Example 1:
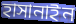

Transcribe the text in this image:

হাসানাইন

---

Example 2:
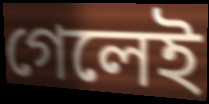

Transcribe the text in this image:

গেলেই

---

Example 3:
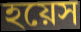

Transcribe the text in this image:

হয়েস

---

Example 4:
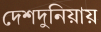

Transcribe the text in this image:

দেশদুনিয়ায়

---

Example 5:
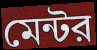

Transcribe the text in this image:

মেন্টর